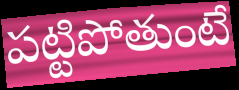
పట్టిపోతుంటే